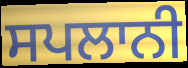
ਸਪਲਾਨੀ